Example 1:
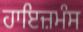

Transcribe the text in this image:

ਹਾਇਜ਼ਮੰਸ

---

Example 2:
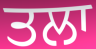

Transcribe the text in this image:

ਤਲਾ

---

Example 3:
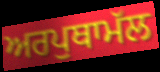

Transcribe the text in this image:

ਅਰਪੁਥਾਮੱਲ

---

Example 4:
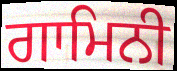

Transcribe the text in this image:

ਗਾਮਿਨੀ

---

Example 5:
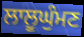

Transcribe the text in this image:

ਲਾਲੂਘੁੰਮਣ